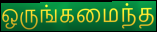
ஒருங்கமைந்த